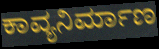
ಕಾವ್ಯನಿರ್ಮಾಣ